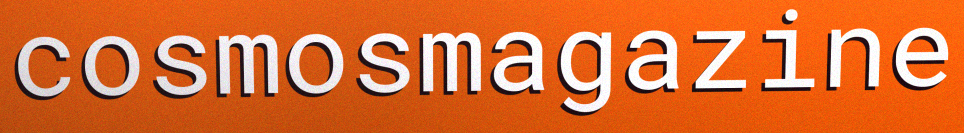
cosmosmagazine